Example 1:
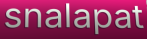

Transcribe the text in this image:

snalapat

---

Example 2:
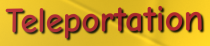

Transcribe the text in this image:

Teleportation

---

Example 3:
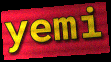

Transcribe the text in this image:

yemi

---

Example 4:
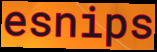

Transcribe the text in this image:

esnips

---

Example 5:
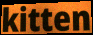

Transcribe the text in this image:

kitten